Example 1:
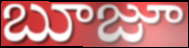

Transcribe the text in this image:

బూజూ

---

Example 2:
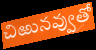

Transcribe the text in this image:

చిఱునవ్వుతో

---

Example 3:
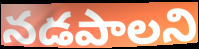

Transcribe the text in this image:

నడపాలని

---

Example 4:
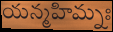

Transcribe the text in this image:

యన్మహిమ్నః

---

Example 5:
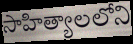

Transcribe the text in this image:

సాహిత్యాలలోని